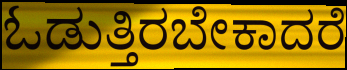
ಓಡುತ್ತಿರಬೇಕಾದರೆ